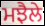
ਮਝੈਲੇ